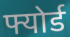
फ्योर्ड